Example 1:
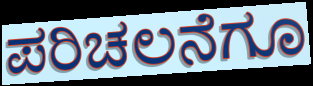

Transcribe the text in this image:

ಪರಿಚಲನೆಗೂ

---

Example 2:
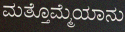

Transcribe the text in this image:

ಮತ್ತೊಮ್ಮೆಯಾನು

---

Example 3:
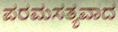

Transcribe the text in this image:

ಪರಮಸತ್ಯವಾದ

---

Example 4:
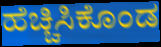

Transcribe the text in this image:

ಹೆಚ್ಚಿಸಿಕೊಂಡ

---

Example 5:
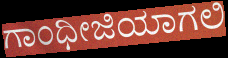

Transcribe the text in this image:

ಗಾಂಧೀಜಿಯಾಗಲಿ